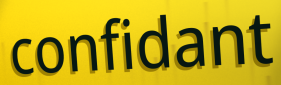
confidant